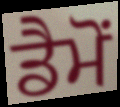
ਡੈਮੋਂ